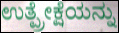
ಉತ್ಪ್ರೇಕ್ಷೆಯನ್ನು